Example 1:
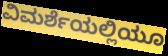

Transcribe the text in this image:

ವಿಮರ್ಶೆಯಲ್ಲಿಯೂ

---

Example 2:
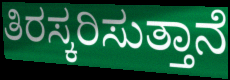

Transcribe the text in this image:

ತಿರಸ್ಕರಿಸುತ್ತಾನೆ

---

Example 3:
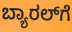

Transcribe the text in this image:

ಬ್ಯಾರಲ್‌ಗೆ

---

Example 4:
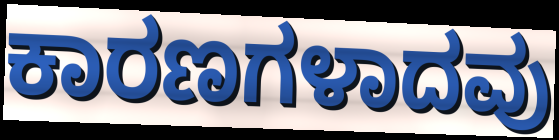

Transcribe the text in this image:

ಕಾರಣಗಳಾದವು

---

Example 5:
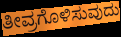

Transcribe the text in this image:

ತೀವ್ರಗೊಳಿಸುವುದು